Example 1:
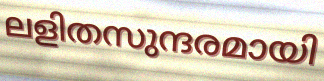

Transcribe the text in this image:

ലളിതസുന്ദരമായി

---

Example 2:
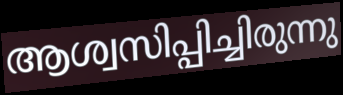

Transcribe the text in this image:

ആശ്വസിപ്പിച്ചിരുന്നു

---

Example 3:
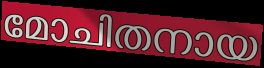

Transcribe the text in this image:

മോചിതനായ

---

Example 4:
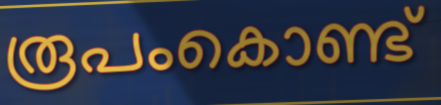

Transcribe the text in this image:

രൂപംകൊണ്ട്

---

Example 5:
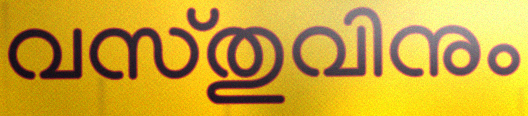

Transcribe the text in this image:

വസ്തുവിനും